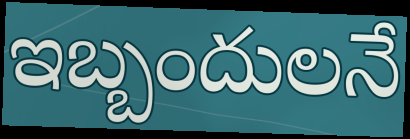
ఇబ్బందులనే